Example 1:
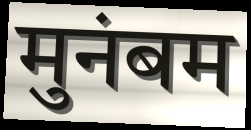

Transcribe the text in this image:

मुनंबम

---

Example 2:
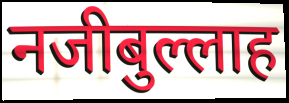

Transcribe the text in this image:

नजीबुल्लाह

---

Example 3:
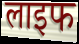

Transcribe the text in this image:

लाइफ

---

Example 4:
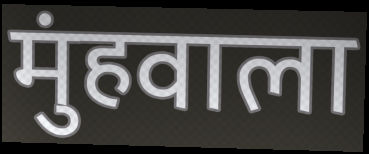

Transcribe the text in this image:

मुंहवाला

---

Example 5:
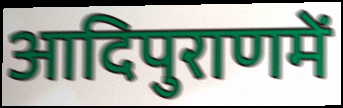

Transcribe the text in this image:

आदिपुराणमें